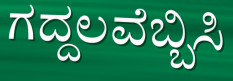
ಗದ್ದಲವೆಬ್ಬಿಸಿ